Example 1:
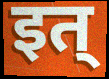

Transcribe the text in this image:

इत्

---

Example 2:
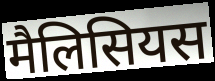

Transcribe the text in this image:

मैलिसियस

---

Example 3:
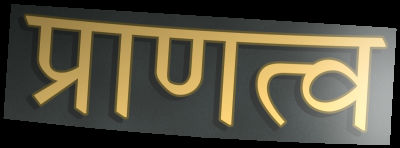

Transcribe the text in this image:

प्राणत्व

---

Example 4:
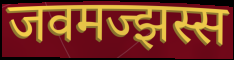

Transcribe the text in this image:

जवमज्झस्स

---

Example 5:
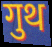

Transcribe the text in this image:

गुथ